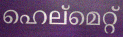
ഹെല്മെറ്റ്